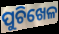
ପୁଚିଖେଳ